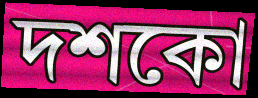
দশকো